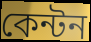
কেন্টন